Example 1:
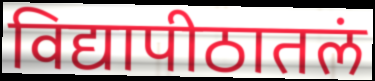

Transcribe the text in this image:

विद्यापीठातलं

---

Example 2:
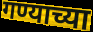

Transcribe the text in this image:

गण्याच्या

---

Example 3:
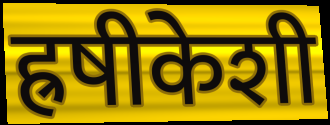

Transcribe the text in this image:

ह्रषीकेशी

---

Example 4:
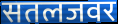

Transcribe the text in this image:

सतलजवर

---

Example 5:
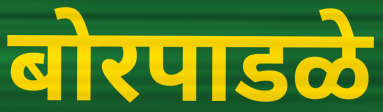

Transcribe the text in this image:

बोरपाडळे